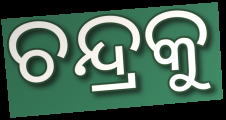
ଚନ୍ଦ୍ରକୁ